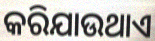
କରିଯାଉଥାଏ